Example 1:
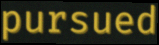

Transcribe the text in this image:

pursued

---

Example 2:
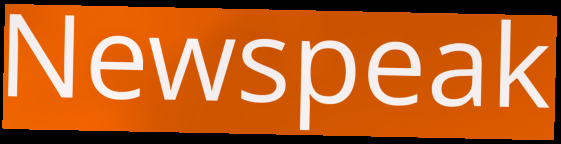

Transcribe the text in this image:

Newspeak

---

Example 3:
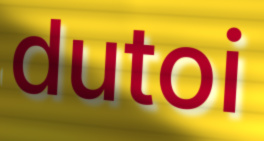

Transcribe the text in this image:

dutoi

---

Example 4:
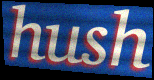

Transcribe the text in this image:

hush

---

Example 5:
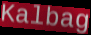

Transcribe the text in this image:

Kalbag